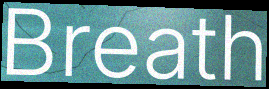
Breath